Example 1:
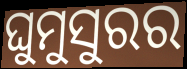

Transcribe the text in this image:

ଘୁମୁସୁରର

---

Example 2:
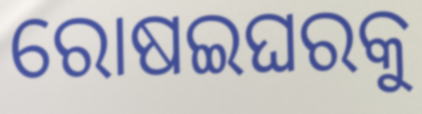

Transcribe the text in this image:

ରୋଷଇଘରକୁ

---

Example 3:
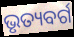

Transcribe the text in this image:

ଭୃତ୍ୟବର୍ଗ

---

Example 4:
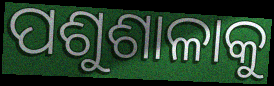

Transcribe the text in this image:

ପଶୁଶାଳାକୁ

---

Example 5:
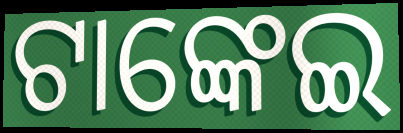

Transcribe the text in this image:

ଟାଙ୍କେଇ